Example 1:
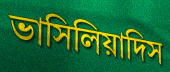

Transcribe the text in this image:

ভাসিলিয়াদিস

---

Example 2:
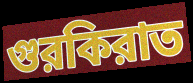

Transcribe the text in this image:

গুরকিরাত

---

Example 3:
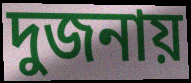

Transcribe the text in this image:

দুজনায়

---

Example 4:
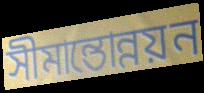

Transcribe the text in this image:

সীমান্তোন্নয়ন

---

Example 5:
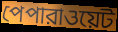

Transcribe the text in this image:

পেপারাওয়েট